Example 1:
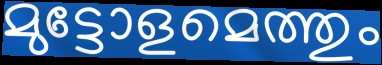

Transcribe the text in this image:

മുട്ടോളമെത്തും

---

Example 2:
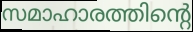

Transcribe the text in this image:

സമാഹാരത്തിന്റെ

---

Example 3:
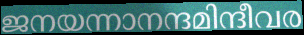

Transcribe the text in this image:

ജനയന്നാനന്ദമിന്ദീവര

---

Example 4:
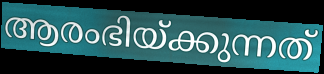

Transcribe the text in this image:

ആരംഭിയ്ക്കുന്നത്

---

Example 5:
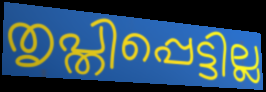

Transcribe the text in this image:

തൃപ്തിപ്പെട്ടില്ല